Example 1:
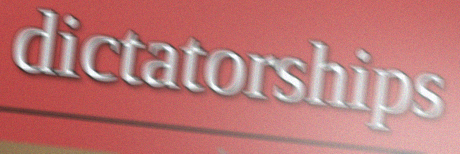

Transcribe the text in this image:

dictatorships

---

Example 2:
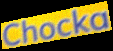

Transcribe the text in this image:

Chocka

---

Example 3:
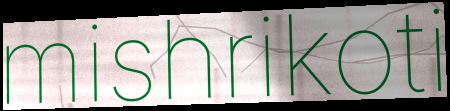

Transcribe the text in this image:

mishrikoti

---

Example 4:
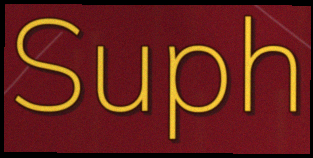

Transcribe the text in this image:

Suph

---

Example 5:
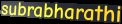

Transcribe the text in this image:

subrabharathi